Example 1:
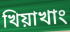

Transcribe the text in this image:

খিয়াখাং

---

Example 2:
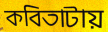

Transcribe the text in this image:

কবিতাটায়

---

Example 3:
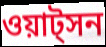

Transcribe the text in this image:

ওয়াট্সন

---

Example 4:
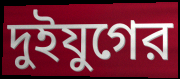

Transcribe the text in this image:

দুইযুগের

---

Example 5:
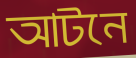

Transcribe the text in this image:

আটনে